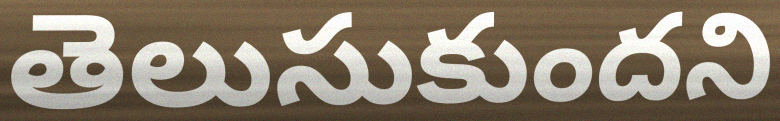
తెలుసుకుందని